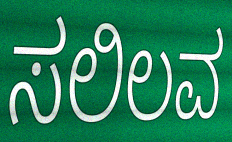
ಸಲಿಲವ